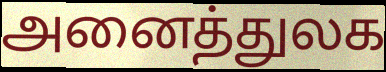
அனைத்துலக